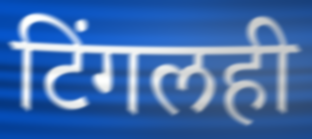
टिंगलही